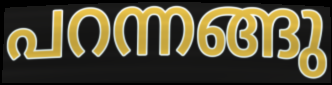
പറന്നങ്ങു